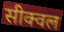
सीक्वल